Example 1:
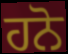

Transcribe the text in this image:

ਹਨੋ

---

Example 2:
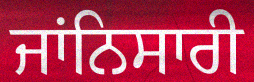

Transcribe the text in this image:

ਜਾਂਨਿਸਾਰੀ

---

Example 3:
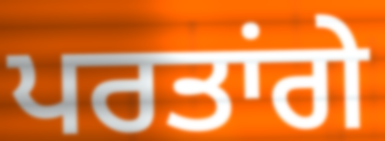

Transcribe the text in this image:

ਪਰਤਾਂਗੇ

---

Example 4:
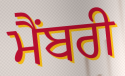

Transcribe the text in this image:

ਮੈਂਬਰੀ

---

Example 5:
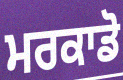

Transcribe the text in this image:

ਮਰਕਾਡੋ